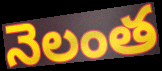
నెలంత